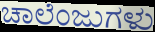
ಚಾಲೆಂಜುಗಳು